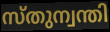
സ്തുന്വന്തി